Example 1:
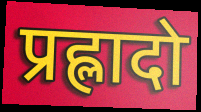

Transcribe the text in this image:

प्रह्लादो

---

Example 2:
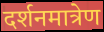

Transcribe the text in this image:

दर्शनमात्रेण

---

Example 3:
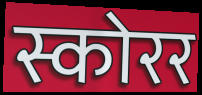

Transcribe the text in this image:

स्कोरर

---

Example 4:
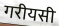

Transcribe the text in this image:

गरीयसी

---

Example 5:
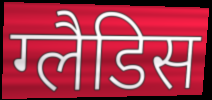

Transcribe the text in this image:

ग्लैडिस